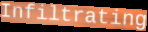
Infiltrating